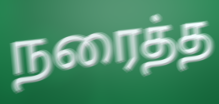
நரைத்த